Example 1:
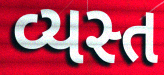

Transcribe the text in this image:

વ્યસ્ત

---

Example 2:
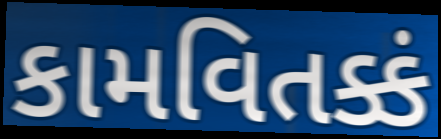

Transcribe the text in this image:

કામવિતક્કં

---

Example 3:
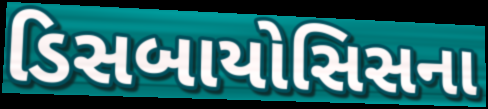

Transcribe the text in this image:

ડિસબાયોસિસના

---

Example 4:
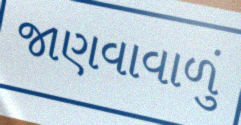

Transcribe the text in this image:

જાણવાવાળું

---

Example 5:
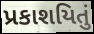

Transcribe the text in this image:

પ્રકાશયિતું